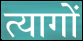
त्यागों